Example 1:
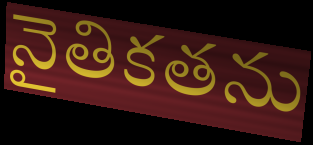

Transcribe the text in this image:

నైతికతను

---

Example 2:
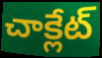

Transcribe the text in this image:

చాక్లేట్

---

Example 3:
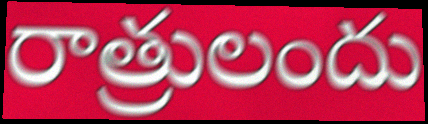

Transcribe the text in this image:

రాత్రులందు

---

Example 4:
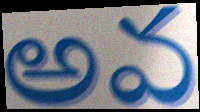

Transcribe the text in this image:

అవ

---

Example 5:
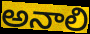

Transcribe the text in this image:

అనాలి